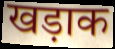
खड़ाक